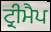
ਟ੍ਰੀਮੈਪ